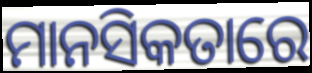
ମାନସିକତାରେ